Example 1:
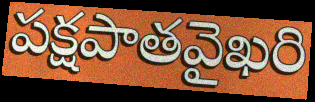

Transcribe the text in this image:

పక్షపాతవైఖరి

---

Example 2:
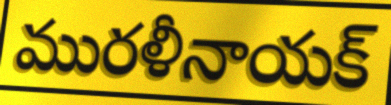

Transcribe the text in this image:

మురళీనాయక్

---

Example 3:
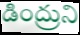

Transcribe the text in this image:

డింద్రుని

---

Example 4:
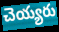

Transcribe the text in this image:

చెయ్యరు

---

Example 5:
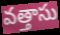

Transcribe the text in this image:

వత్తాసు